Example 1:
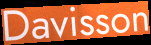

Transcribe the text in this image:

Davisson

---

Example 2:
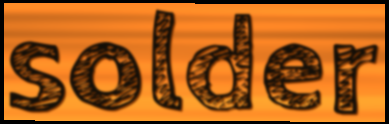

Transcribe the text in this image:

solder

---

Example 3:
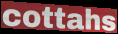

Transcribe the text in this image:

cottahs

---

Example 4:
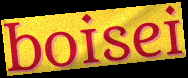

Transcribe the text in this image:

boisei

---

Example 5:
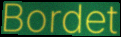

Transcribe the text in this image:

Bordet